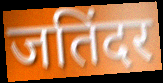
जतिंदर